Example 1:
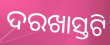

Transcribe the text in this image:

ଦରଖାସ୍ତଟି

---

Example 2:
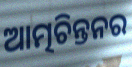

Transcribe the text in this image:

ଆତ୍ମଚିନ୍ତନର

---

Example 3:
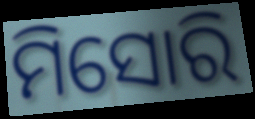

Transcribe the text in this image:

ମିସୋରି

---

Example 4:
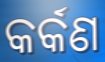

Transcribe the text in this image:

କର୍କଣ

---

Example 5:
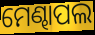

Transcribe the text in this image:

ମେଣ୍ଢାପଲ